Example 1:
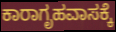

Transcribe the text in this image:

ಕಾರಾಗೃಹವಾಸಕ್ಕೆ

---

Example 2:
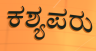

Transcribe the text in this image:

ಕಶ್ಯಪರು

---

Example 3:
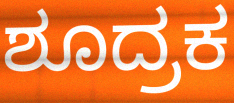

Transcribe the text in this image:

ಶೂದ್ರಕ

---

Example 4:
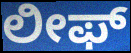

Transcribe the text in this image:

ಲೀಫ್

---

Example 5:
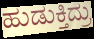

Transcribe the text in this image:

ಹುಡುಕ್ತಿದ್ರು